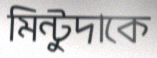
মিন্টুদাকে